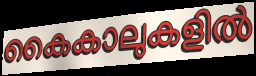
കൈകാലുകളിൽ